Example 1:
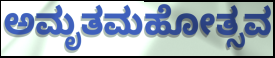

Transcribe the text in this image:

ಅಮೃತಮಹೋತ್ಸವ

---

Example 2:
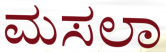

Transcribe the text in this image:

ಮಸಲಾ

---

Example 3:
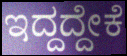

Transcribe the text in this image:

ಇದ್ದದ್ದೇಕೆ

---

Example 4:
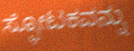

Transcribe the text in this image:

ಸ್ಫೋಟಕವನ್ನು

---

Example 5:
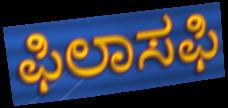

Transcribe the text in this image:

ಫಿಲಾಸಫಿ